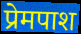
प्रेमपाश